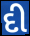
દી